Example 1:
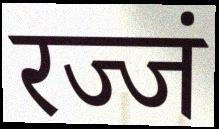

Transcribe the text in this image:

रज्जं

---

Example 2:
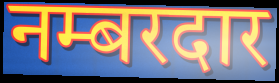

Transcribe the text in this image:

नम्बरदार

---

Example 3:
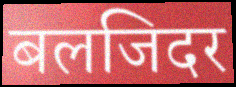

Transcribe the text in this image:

बलजिदर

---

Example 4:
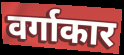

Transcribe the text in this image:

वर्गाकार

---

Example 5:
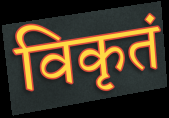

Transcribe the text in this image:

विकृतं